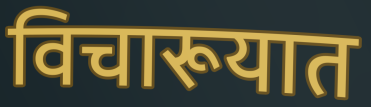
विचारूयात